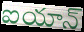
ఐయాన్